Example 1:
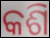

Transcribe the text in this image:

କଶି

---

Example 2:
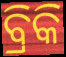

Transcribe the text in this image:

ବ୍ରିକି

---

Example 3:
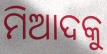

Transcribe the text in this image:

ମିଆଦକୁ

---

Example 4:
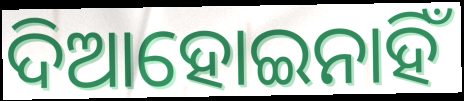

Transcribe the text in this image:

ଦିଆହୋଇନାହିଁ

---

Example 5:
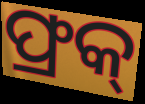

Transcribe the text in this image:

ଫ୍ରକ୍